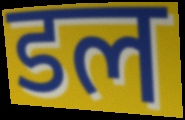
डल